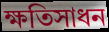
ক্ষতিসাধন